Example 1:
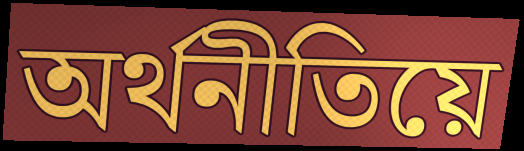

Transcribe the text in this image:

অৰ্থনীতিয়ে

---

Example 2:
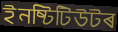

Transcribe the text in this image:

ইনষ্টিটিউটৰ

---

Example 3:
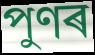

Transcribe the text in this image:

পুণৰ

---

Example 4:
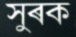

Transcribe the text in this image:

সুৰক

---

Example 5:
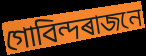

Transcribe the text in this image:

গোবিন্দৰাজনে